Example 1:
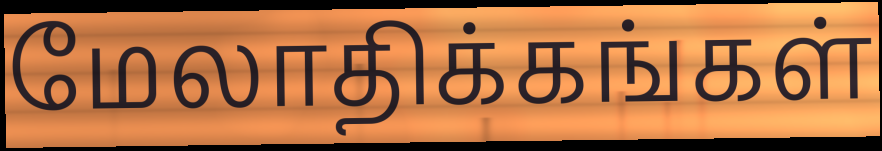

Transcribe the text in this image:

மேலாதிக்கங்கள்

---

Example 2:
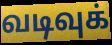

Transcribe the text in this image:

வடிவுக்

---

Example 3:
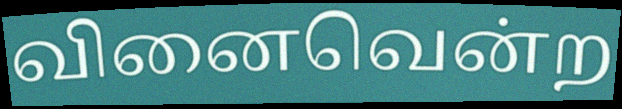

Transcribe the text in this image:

வினைவென்ற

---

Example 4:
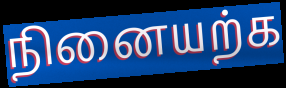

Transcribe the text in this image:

நினையற்க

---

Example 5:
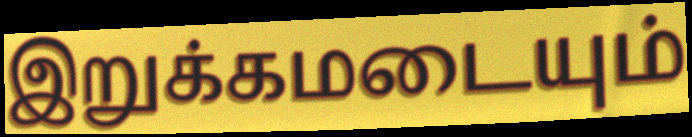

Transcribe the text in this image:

இறுக்கமடையும்